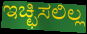
ಇಚ್ಛಿಸಲಿಲ್ಲ